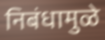
निबंधामुळे